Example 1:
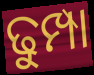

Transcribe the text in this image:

ଢୁମ୍ପା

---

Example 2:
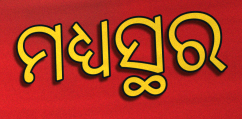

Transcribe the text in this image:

ମଧ୍ୟସ୍ଥର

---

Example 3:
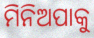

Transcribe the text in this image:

ମିନିଅପାକୁ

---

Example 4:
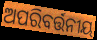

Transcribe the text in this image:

ଅପରିବର୍ତ୍ତନୀୟ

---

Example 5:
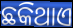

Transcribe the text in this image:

ଛକିଥାଏ